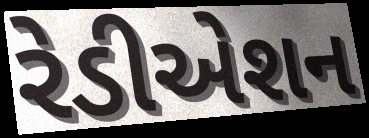
રેડીએશન